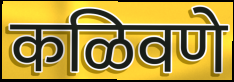
कळिवणे